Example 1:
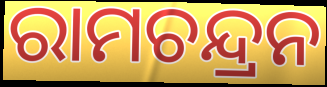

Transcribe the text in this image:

ରାମଚନ୍ଦ୍ରନ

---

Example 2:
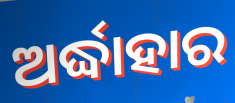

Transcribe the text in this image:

ଅର୍ଦ୍ଧାହାର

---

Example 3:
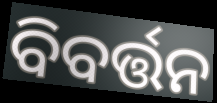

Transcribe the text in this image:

ବିବର୍ତ୍ତନ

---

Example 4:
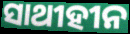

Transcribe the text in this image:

ସାଥୀହୀନ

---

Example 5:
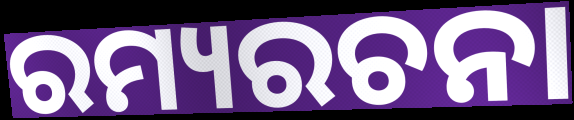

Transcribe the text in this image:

ରମ୍ୟରଚନା